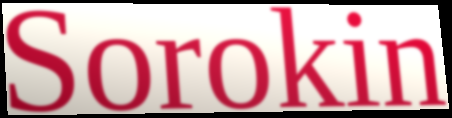
Sorokin